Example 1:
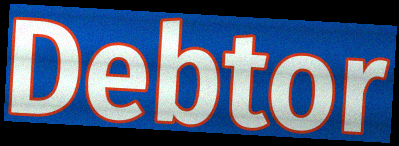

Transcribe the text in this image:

Debtor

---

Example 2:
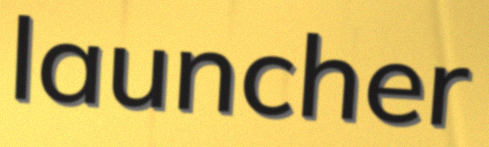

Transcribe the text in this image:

launcher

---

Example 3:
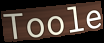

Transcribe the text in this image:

Toole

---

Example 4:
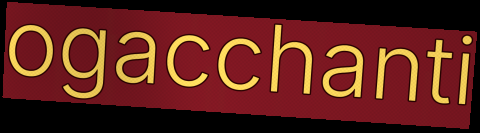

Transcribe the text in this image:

ogacchanti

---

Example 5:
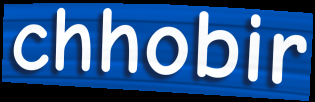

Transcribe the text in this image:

chhobir